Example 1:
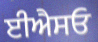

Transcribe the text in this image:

ਈਐਸਓ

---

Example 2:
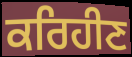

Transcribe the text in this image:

ਕਰਿਹੀਣ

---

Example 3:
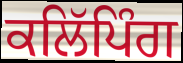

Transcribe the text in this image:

ਕਲਿੱਪਿੰਗ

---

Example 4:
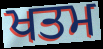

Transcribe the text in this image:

ਖਤਮ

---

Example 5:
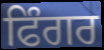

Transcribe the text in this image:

ਫਿੰਗਰ